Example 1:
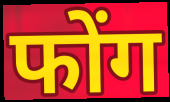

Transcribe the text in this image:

फोंग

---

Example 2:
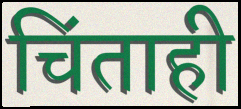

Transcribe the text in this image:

चिंताही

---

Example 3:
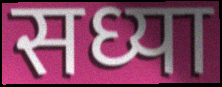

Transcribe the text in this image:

सध्या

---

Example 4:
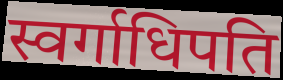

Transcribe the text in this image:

स्वर्गाधिपति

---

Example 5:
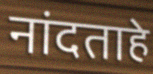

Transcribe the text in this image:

नांदताहे